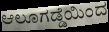
ಆಲೂಗಡ್ಡೆಯಿಂದ